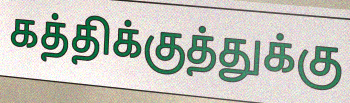
கத்திக்குத்துக்கு